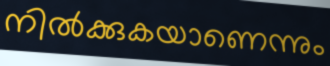
നിൽക്കുകയാണെന്നും